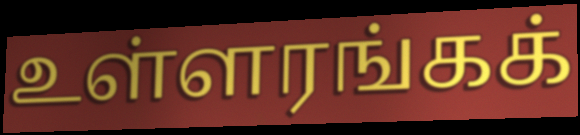
உள்ளரங்கக்